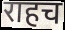
राहच